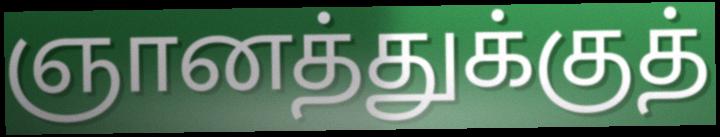
ஞானத்துக்குத்